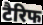
टैरिफ